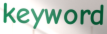
keyword